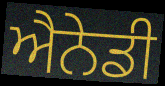
ਐਨੇਡੀ